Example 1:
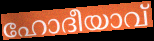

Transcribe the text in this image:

ഹോദീയാവ്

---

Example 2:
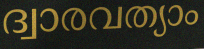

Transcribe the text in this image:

ദ്വാരവത്യാം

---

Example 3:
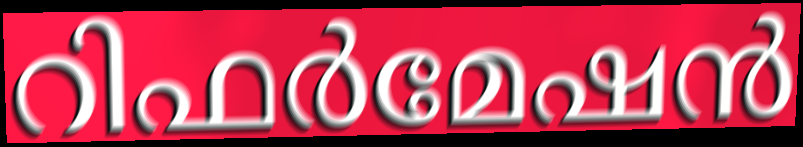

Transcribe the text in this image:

റിഫർമേഷൻ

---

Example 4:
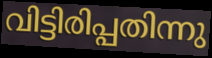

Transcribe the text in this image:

വിട്ടിരിപ്പതിന്നു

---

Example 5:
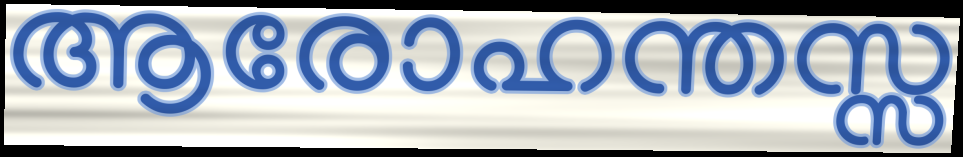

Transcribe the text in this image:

ആരോഹന്തസ്സ